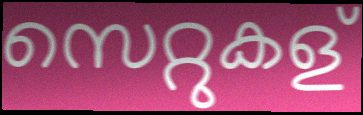
സെറ്റുകള്